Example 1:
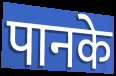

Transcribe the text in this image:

पानके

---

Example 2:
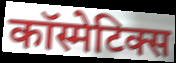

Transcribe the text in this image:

कॉस्मेटिक्स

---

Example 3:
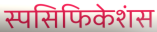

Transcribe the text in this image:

स्पसिफिकेशंस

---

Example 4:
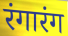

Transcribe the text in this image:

रंगारंग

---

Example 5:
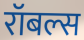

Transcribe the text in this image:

रॉबल्स